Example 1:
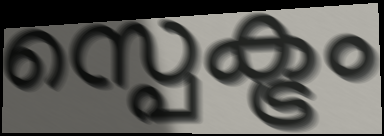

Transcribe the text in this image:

സ്പെക്ട്രം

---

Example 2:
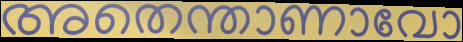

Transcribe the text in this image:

അതെന്താണാവോ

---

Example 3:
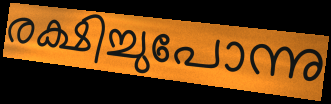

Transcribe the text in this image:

രക്ഷിച്ചുപോന്നു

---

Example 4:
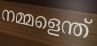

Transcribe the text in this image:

നമ്മളെന്ത്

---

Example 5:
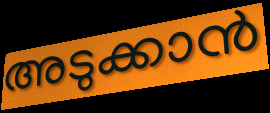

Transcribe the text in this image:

അടുക്കാൻ